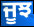
ਜੂਝ